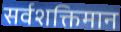
सर्वशक्तिमान